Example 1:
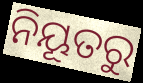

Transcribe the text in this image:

ନିୟୂତରୁ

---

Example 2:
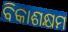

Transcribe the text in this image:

ବିକାଶକ୍ଷମ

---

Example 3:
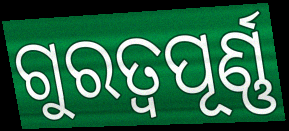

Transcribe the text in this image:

ଗୁରତ୍ୱପୂର୍ଣ୍ଣ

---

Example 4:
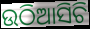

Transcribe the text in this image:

ଉଠିଆସିଚି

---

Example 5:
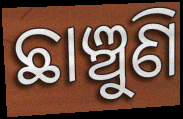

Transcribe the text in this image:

ଛାଞ୍ଚୁଣି